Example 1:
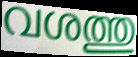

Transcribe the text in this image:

വശത്തു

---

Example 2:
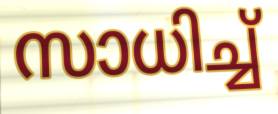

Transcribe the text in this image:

സാധിച്ച്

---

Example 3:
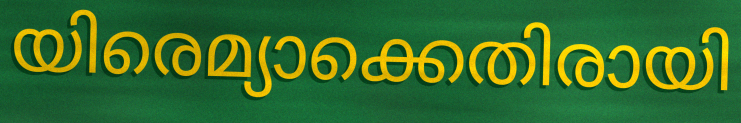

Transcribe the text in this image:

യിരെമ്യാക്കെതിരായി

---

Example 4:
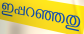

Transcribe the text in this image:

ഇപ്പറഞ്ഞതു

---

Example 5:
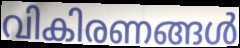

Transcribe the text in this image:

വികിരണങ്ങൾ